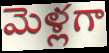
మెళ్లగా